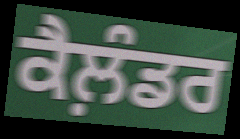
ਕੈਲ਼ੰਡਰ